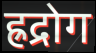
ह्रद्रोग